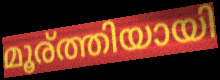
മൂര്ത്തിയായി